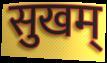
सुखम्